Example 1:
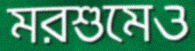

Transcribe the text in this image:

মরশুমেও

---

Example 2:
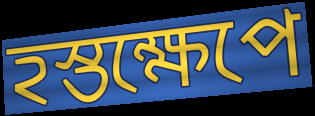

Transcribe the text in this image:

হস্তক্ষেপে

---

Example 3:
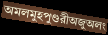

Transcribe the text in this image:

অমলমুহপুণ্ডরীঅজুঅলং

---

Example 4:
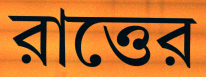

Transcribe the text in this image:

রাত্তের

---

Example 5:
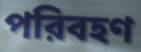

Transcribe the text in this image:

পরিবহণ